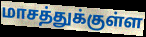
மாசத்துக்குள்ள